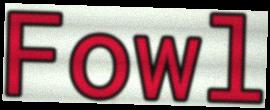
Fowl